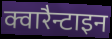
क्वारैन्टाइन